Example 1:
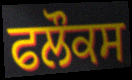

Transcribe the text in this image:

ਫਲੌਕਸ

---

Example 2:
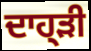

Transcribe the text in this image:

ਦਾਹ੍ੜੀ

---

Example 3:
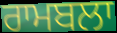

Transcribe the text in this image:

ਰਾਮਬਲਾ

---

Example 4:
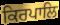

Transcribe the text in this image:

ਕਿਰਪਾਲਿ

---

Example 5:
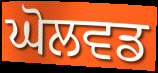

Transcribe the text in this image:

ਘੋਲਵਡ